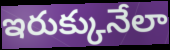
ఇరుక్కునేలా